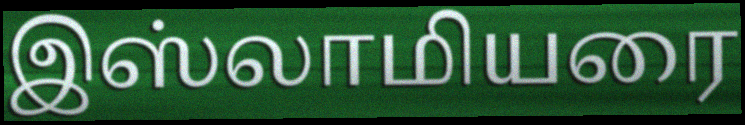
இஸ்லாமியரை